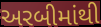
અરબીમાંથી